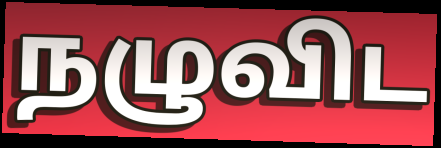
நழுவிட